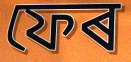
ফেৰ